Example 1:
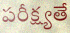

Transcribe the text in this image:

పరీక్ష్యతే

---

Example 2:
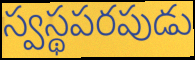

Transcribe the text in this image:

స్వస్థపరపుడు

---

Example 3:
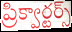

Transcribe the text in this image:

ప్రిక్వార్టర్స్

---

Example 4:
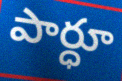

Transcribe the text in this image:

పార్ధూ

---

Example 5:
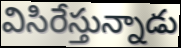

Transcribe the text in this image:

విసిరేస్తున్నాడు